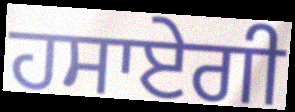
ਹਸਾਏਗੀ